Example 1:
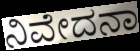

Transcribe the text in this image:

ನಿವೇದನಾ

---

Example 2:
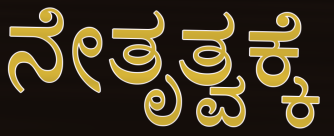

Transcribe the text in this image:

ನೇತೃತ್ವಕ್ಕೆ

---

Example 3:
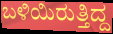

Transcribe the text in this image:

ಬಳಿಯಿರುತ್ತಿದ್ದ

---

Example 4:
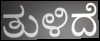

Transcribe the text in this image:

ತುಳಿದೆ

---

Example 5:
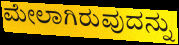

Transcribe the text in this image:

ಮೇಲಾಗಿರುವುದನ್ನು